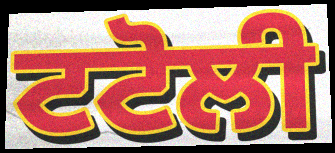
ਟਟੋਲੀ